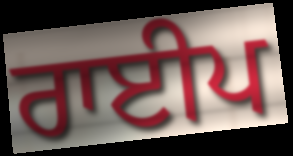
ਰਾਈਪ